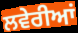
ਲਵੇਰੀਆਂ